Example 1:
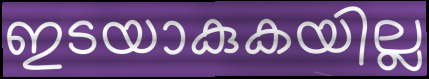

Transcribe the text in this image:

ഇടയാകുകയില്ല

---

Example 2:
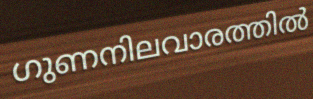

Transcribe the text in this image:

ഗുണനിലവാരത്തിൽ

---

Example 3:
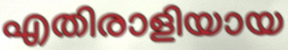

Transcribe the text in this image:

എതിരാളിയായ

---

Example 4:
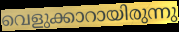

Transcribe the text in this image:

വെളുക്കാറായിരുന്നു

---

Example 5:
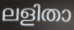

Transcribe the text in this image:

ലളിതാ